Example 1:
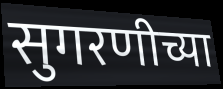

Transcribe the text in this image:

सुगरणीच्या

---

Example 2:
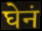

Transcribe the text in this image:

घेनं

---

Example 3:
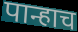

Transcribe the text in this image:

पान्हाच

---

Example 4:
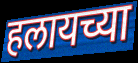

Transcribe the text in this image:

हलायच्या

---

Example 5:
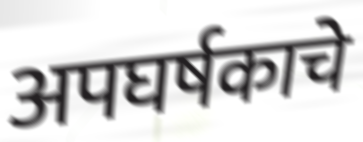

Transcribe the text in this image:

अपघर्षकाचे